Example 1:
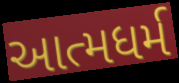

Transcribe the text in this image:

આત્મધર્મ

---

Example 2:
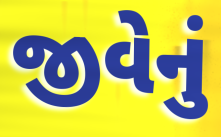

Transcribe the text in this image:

જીવેનું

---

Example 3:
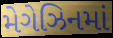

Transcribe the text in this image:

મેગેઝિનમાં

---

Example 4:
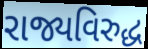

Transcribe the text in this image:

રાજ્યવિરુદ્ધ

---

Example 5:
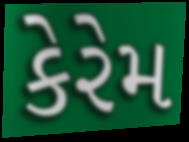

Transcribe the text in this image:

કેરેમ